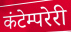
कंटेम्परेरी